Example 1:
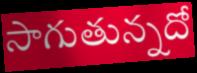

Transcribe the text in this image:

సాగుతున్నదో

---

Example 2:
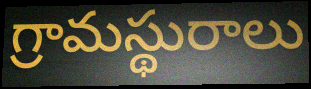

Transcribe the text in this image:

గ్రామస్థురాలు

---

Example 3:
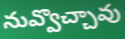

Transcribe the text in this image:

నువ్వొచ్చావు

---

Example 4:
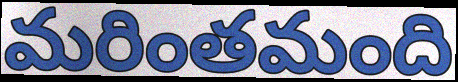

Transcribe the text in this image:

మరింతమంది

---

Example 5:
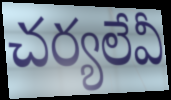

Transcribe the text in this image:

చర్యలేవీ